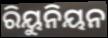
ରିୟୁନିୟନ